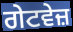
ਗੇਟਵੇਜ਼